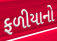
ફળીયાનો